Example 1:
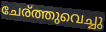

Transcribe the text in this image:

ചേര്ത്തുവെച്ചു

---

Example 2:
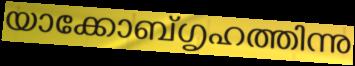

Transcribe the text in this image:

യാക്കോബ്ഗൃഹത്തിന്നു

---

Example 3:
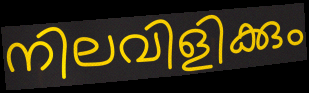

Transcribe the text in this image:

നിലവിളിക്കും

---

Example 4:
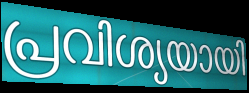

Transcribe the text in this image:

പ്രവിശ്യയായി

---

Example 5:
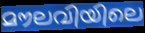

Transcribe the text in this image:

മൗലവിയിലെ